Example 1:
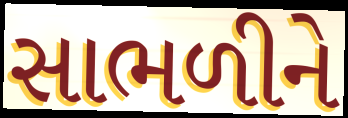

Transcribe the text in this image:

સાભળીને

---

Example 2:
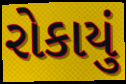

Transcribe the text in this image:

રોકાયું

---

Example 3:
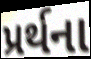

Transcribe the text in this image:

પ્રર્થના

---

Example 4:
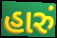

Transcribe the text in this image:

હારું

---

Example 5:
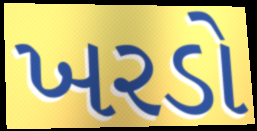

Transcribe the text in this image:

ખરડો